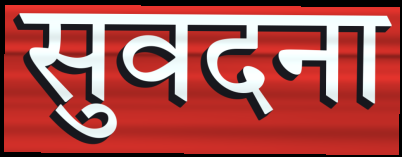
सुवदना